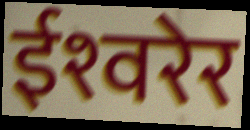
ईश्वरेर